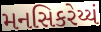
મનસિકરેય્યં